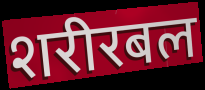
शरीरबल